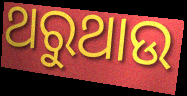
ଥରୁଥାଉ